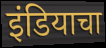
इंडियाचा